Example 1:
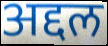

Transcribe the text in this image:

अद्दल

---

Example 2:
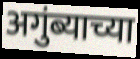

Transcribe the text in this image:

अगुंब्याच्या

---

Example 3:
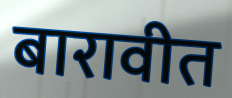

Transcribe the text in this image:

बारावीत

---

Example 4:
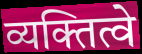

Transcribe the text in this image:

व्यक्तित्वे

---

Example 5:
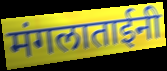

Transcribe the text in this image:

मंगलाताईनी